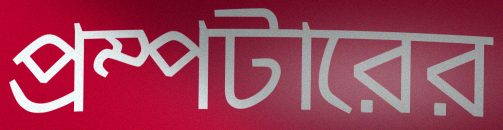
প্রম্পটারের